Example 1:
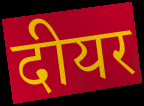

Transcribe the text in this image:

दीयर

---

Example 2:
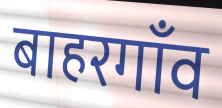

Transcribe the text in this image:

बाहरगाँव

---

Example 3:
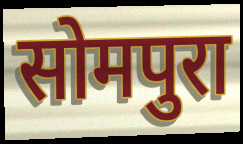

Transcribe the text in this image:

सोमपुरा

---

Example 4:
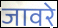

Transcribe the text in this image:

जावरे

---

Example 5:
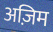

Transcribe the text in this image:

अज़िम